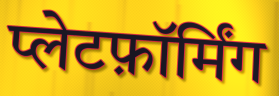
प्लेटफ़ॉर्मिंग